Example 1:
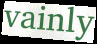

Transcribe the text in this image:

vainly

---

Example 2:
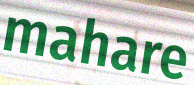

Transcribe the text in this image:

mahare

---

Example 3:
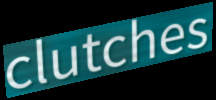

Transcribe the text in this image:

clutches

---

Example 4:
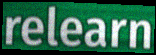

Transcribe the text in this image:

relearn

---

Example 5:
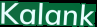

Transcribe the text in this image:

Kalank